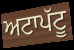
ਅਟਾਪੱਟੂ